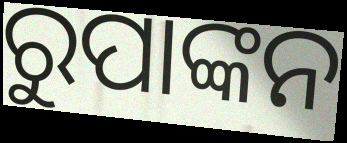
ରୁପାଙ୍କନ